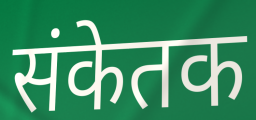
संकेतक